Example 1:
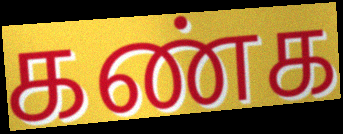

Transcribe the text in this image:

கண்க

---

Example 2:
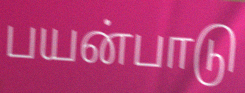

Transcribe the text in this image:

பயன்பாடு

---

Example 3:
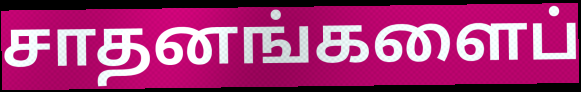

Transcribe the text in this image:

சாதனங்களைப்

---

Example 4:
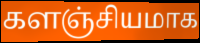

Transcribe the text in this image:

களஞ்சியமாக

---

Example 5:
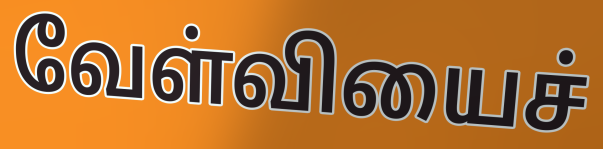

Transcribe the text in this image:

வேள்வியைச்